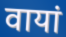
वायां